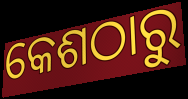
କେଶଠାରୁ